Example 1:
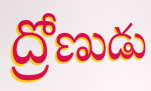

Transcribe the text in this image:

ద్రోణుడు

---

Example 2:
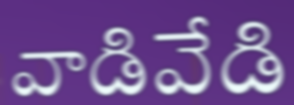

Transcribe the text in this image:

వాడివేడి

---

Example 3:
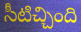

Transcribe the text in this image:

సీటిచ్చింది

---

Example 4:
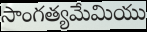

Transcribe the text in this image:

సాంగత్యమేమియు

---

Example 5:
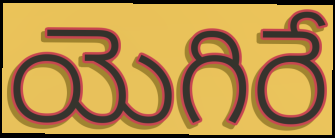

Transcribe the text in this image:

యెగిరే